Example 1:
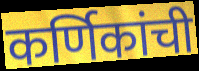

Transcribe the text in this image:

कर्णिकांची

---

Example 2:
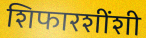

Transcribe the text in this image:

शिफारशींशी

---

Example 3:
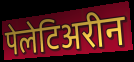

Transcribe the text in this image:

पेलेटिअरीन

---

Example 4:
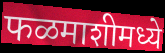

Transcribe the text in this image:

फळमाशीमध्ये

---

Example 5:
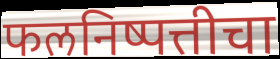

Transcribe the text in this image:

फलनिष्पत्तीचा